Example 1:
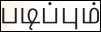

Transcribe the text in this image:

படிப்பும்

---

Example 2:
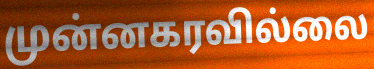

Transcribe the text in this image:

முன்னகரவில்லை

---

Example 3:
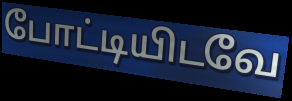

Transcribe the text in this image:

போட்டியிடவே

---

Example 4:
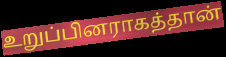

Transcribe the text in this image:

உறுப்பினராகத்தான்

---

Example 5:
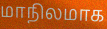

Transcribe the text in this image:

மாநிலமாக